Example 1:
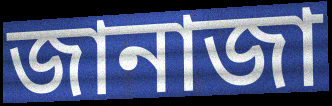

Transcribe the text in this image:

জানাজা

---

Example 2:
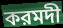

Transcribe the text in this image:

করমদী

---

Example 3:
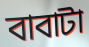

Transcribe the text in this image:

বাবাটা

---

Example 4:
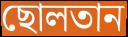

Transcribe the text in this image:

ছোলতান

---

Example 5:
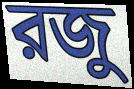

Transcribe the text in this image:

রজু